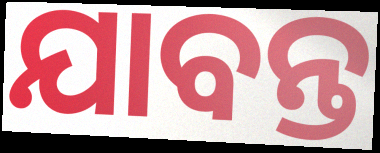
ଯାବନ୍ତ